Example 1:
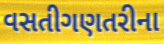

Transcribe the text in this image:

વસતીગણતરીના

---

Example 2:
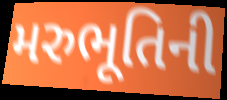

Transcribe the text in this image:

મરુભૂતિની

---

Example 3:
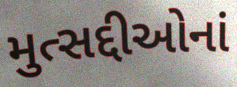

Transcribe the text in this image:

મુત્સદ્દીઓનાં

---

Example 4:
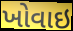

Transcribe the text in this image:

ખોવાઇ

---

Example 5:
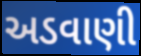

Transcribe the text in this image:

અડવાણી